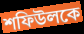
শফিউলকে